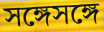
সঙ্গেসঙ্গে